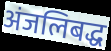
अंजलिबद्ध